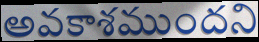
అవకాశముందని